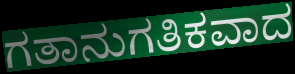
ಗತಾನುಗತಿಕವಾದ